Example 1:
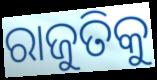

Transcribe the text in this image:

ରାଜୁତିକୁ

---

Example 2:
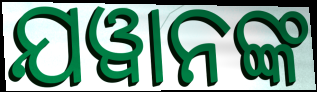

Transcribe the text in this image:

ଯୱାନଙ୍କ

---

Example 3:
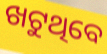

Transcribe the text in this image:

ଖଟୁଥିବେ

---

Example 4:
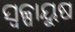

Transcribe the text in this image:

ସ୍ୱଳ୍ପାୟୁଷ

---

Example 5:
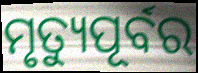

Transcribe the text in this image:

ମୃତ୍ୟୁପୂର୍ବର